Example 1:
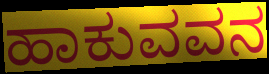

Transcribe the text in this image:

ಹಾಕುವವನ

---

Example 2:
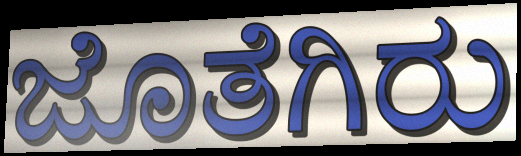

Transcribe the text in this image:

ಜೊತೆಗಿರು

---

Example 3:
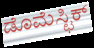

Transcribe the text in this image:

ಡೊಮೆಸ್ಟಿಕ್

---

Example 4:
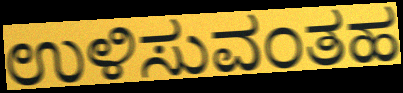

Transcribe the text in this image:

ಉಳಿಸುವಂತಹ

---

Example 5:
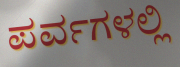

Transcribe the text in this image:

ಪರ್ವಗಳಲ್ಲಿ